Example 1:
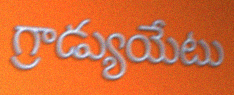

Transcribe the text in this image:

గ్రాడ్యుయేటు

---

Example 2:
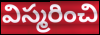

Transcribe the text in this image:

విస్మరించి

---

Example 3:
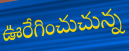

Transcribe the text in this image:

ఊరేగించుచున్న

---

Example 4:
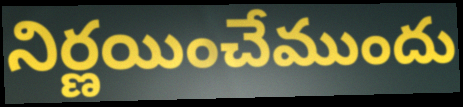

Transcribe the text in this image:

నిర్ణయించేముందు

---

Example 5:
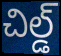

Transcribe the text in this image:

చిల్డ్